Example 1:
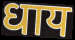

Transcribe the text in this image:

धाय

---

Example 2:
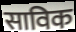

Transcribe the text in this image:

साविक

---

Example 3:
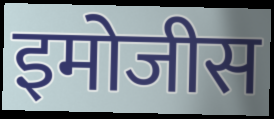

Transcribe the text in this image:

इमोजीस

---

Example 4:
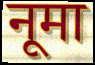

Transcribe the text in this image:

नूमा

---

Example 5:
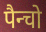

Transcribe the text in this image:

पैन्चो